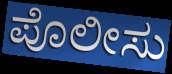
ಪೊಲೀಸು